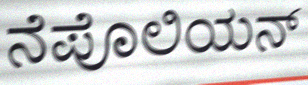
ನೆಪೊಲಿಯನ್